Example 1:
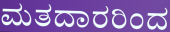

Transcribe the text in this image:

ಮತದಾರರಿಂದ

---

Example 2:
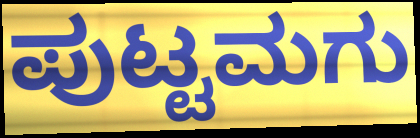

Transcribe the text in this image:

ಪುಟ್ಟಮಗು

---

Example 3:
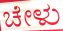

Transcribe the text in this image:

ಚೇಳು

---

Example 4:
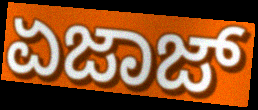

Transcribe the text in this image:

ಏಜಾಜ್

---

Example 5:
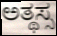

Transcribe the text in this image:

ಅತ್ಥಸ್ಸ